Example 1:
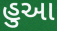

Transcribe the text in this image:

હુઆ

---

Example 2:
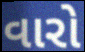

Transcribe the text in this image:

વારો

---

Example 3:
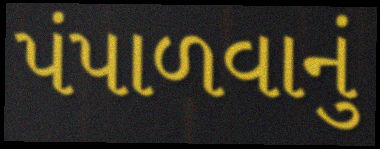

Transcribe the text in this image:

પંપાળવાનું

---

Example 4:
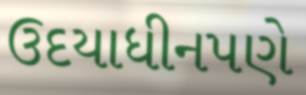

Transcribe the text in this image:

ઉદયાધીનપણે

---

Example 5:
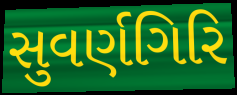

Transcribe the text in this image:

સુવર્ણગિરિ